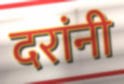
दरांनी